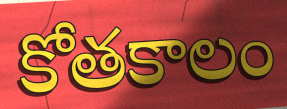
కోతకాలం